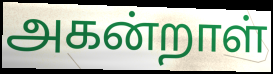
அகன்றாள்